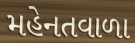
મહેનતવાળા